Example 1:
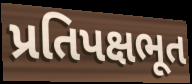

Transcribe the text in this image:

પ્રતિપક્ષભૂત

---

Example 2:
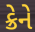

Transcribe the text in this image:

ક્રેને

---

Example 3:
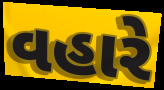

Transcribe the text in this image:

વહારે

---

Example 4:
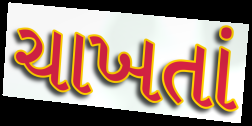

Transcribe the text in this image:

ચાખતાં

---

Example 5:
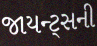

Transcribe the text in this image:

જાયન્ટ્સની